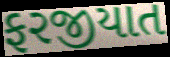
ફરજીયાત